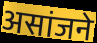
असांजने